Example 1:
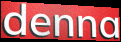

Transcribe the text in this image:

denna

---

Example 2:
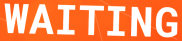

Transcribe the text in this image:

WAITING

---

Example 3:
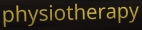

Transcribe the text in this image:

physiotherapy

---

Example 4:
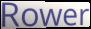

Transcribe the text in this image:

Rower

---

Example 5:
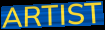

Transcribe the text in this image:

ARTIST